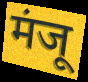
मंजू